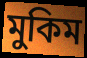
মুকিম